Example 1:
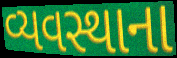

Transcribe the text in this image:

વ્યવસ્થાના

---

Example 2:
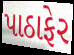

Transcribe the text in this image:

પાઠાફેર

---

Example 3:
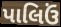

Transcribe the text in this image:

પાલિઉં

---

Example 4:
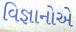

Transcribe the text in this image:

વિજ્ઞાનોએ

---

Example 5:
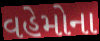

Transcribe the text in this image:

વહેમોના